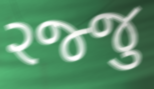
રજ્જુ